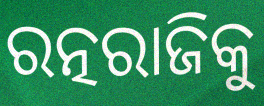
ରତ୍ନରାଜିକୁ